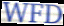
WFD